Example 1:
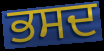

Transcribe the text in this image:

ਭਸਦ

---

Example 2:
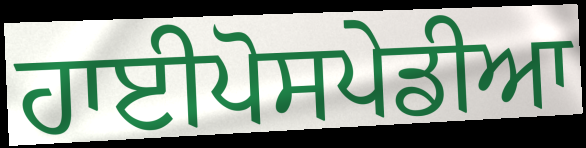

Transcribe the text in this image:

ਹਾਈਪੋਸਪੇਡੀਆ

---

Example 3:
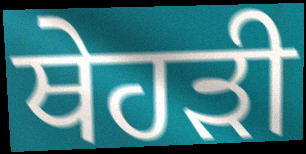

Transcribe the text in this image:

ਥੇਹੜੀ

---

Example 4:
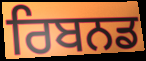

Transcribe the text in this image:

ਰਿਬਨਡ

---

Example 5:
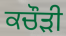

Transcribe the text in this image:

ਕਚੌੜੀ